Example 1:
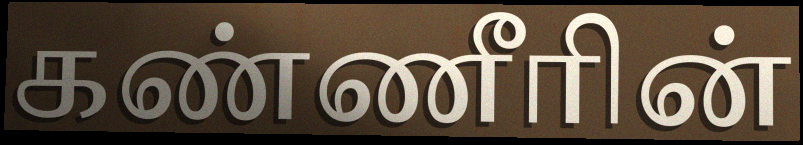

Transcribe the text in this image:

கண்ணீரின்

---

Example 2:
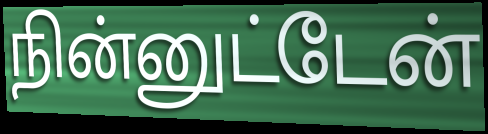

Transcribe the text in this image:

நின்னுட்டேன்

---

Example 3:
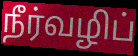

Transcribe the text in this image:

நீர்வழிப்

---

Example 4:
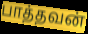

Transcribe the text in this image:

பாத்தவன்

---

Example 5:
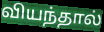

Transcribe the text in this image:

வியந்தால்